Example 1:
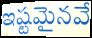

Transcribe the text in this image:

ఇష్టమైనవే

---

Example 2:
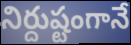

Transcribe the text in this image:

నిర్దుష్టంగానే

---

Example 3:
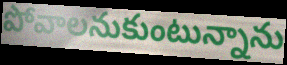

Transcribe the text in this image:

పోవాలనుకుంటున్నాను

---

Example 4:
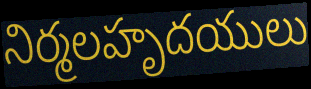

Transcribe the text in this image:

నిర్మలహృదయులు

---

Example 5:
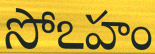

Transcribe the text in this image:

సోఽహం